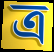
ত্র